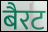
बैरट